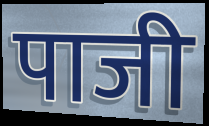
पाजी